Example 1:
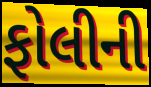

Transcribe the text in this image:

ફોલીની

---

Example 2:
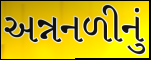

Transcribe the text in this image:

અન્નનળીનું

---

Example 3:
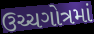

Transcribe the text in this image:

ઉચ્ચગોત્રમાં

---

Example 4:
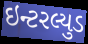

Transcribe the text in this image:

ઇન્ટરલ્યુડ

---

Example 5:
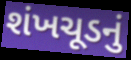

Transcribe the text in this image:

શંખચૂડનું